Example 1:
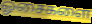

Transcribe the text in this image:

ஓசைகளை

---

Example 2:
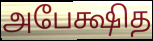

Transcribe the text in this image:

அபேக்ஷித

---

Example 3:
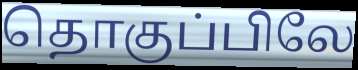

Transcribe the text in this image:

தொகுப்பிலே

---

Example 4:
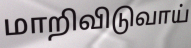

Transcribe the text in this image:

மாறிவிடுவாய்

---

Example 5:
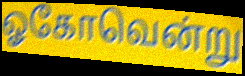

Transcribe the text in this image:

ஓகோவென்று